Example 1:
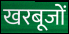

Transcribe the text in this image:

खरबूजों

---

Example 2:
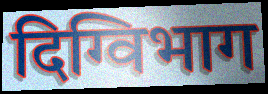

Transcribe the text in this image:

दिग्विभाग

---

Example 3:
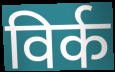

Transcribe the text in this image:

विर्क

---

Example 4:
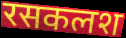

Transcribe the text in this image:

रसकलश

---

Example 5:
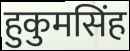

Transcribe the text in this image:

हुकुमसिंह